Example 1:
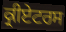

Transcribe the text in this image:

ਕ੍ਰੀਏਟਰਸ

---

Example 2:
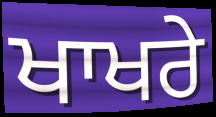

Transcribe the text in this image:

ਖਾਖਰੇ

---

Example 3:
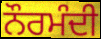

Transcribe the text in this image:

ਨੌਰਮੰਦੀ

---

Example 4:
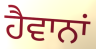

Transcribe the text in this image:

ਹੈਵਾਨਾਂ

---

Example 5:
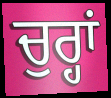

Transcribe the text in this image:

ਚੁਰ੍ਹਾਂ